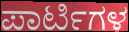
ಪಾರ್ಟಿಗಳ